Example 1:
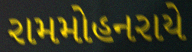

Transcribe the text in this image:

રામમોહનરાયે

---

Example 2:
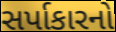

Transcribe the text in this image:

સર્પાકારનો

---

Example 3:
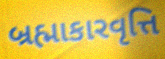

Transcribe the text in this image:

બ્રહ્માકારવૃત્તિ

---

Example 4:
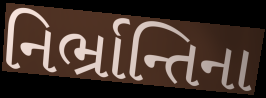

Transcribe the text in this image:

નિર્ભ્રાન્તિના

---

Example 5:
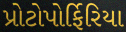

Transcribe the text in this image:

પ્રોટોપોર્ફિરિયા